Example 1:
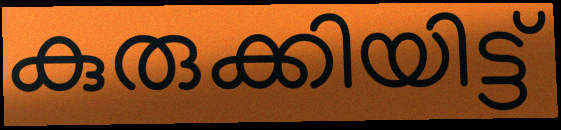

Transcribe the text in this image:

കുരുക്കിയിട്ട്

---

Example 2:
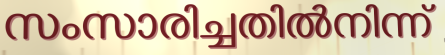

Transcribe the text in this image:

സംസാരിച്ചതിൽനിന്ന്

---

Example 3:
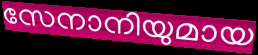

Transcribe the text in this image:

സേനാനിയുമായ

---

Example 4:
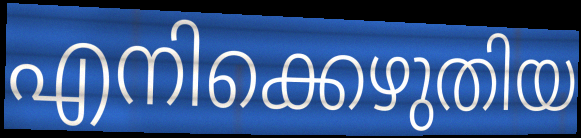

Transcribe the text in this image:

എനിക്കെഴുതിയ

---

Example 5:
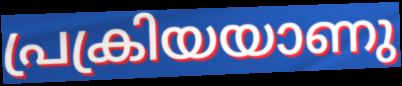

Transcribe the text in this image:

പ്രക്രിയയാണു